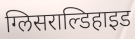
ग्लिसराल्डिहाइड